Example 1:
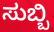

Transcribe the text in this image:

ಸುಬ್ಬಿ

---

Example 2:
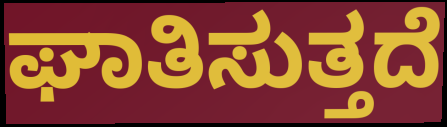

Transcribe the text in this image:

ಘಾತಿಸುತ್ತದೆ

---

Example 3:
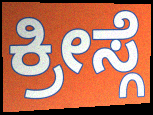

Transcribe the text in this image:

ಕ್ರೀಸ್ಗೆ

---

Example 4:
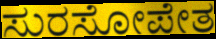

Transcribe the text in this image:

ಸುರಸೋಪೇತ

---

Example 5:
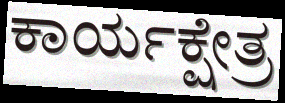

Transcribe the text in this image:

ಕಾರ್ಯಕ್ಷೇತ್ರ